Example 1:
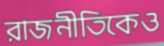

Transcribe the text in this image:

রাজনীতিকেও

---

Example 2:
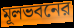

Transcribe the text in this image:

মূলভবনের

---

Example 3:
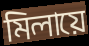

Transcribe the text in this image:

মিলায়ে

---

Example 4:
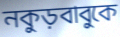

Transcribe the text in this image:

নকুড়বাবুকে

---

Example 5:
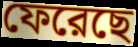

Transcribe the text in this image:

ফেরেছে